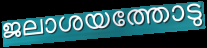
ജലാശയത്തോടു